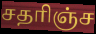
சதரிஞ்ச